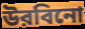
উরবিনো